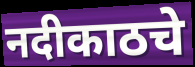
नदीकाठचे